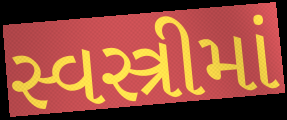
સ્વસ્ત્રીમાં